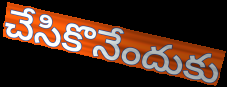
చేసికొనేందుకు